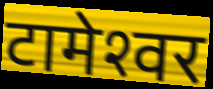
टामेश्वर